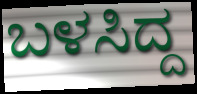
ಬಳಸಿದ್ದ